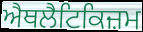
ਐਥਲੈਟਿਕਿਜ਼ਮ